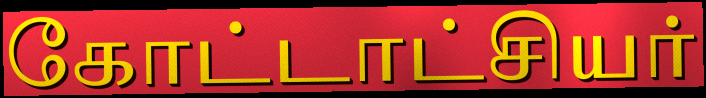
கோட்டாட்சியர்